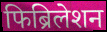
फिब्रिलेशन